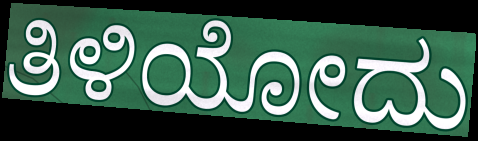
ತಿಳಿಯೋದು